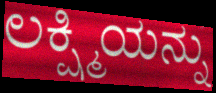
ಲಕ್ಷ್ಮಿಯನ್ನು